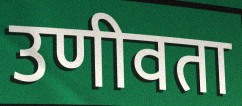
उणीवता